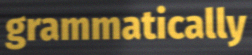
grammatically